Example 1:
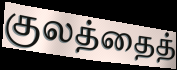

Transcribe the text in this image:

குலத்தைத்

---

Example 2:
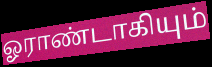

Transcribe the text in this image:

ஓராண்டாகியும்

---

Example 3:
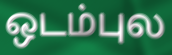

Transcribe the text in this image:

ஒடம்புல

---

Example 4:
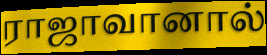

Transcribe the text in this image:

ராஜாவானால்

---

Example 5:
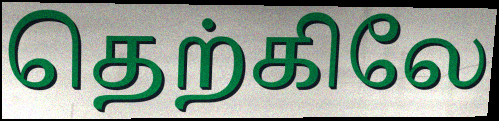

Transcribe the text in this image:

தெற்கிலே